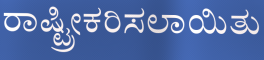
ರಾಷ್ಟ್ರೀಕರಿಸಲಾಯಿತು